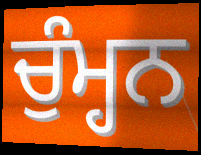
ਚੁੰਮ੍ਹਨ